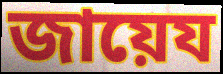
জায়েয